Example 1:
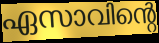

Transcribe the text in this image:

ഏസാവിന്റെ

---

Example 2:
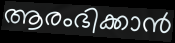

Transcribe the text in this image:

ആരംഭിക്കാൻ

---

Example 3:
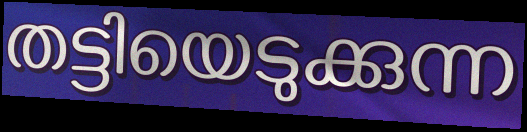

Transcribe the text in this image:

തട്ടിയെടുക്കുന്ന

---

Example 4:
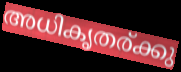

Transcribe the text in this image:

അധികൃതര്ക്കു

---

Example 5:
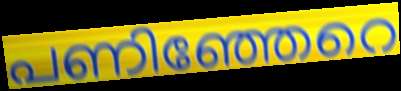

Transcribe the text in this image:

പണിഞ്ഞേറെ